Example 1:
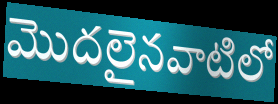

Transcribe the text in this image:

మొదలైనవాటిలో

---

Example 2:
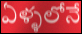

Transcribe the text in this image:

ఏళ్ళలోనే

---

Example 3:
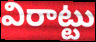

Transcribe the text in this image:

విరాట్టు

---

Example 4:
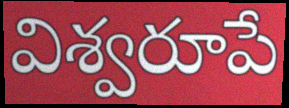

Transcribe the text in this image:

విశ్వరూపే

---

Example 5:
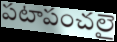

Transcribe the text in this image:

పటాపంచలై